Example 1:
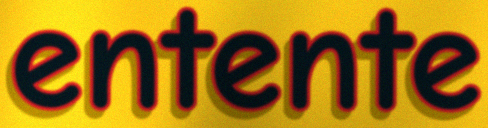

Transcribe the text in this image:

entente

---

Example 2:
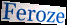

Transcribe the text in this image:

Feroze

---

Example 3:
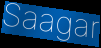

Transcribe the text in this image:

Saagar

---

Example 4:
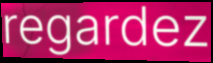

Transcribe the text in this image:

regardez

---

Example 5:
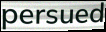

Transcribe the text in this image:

persued